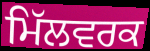
ਮਿੱਲਵਰਕ